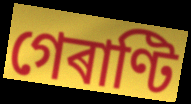
গেৰাণ্টি